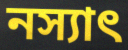
নস্যাৎ